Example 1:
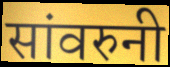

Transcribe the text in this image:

सांवरुनी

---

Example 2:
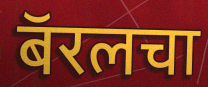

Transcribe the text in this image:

बॅरलचा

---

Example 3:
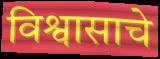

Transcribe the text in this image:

विश्वासाचे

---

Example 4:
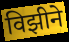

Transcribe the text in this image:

विझीने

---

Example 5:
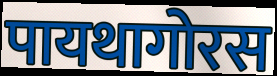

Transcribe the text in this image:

पायथागोरस